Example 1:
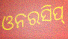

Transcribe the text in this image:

ଓନରସିପ୍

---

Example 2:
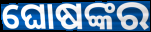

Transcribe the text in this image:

ଘୋଷଙ୍କର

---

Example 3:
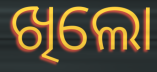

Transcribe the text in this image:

ଖିଲୋ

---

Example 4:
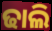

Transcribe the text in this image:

ଢାଲି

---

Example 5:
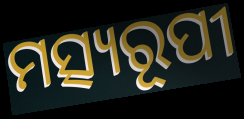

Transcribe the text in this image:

ମତ୍ସ୍ୟରୂପୀ